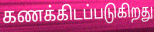
கணக்கிடப்படுகிறது